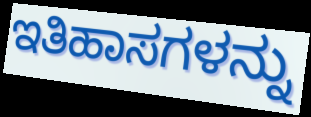
ಇತಿಹಾಸಗಳನ್ನು